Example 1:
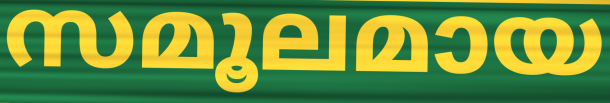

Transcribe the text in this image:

സമൂലമായ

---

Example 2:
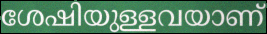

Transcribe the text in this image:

ശേഷിയുള്ളവയാണ്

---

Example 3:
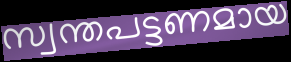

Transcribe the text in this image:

സ്വന്തപട്ടണമായ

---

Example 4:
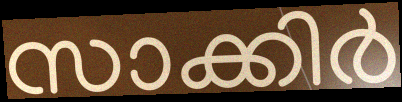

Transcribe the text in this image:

സാക്കിർ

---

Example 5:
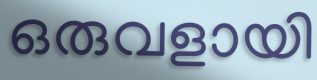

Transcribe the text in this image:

ഒരുവളായി